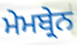
ਮੇਮਬ੍ਰੇਨ